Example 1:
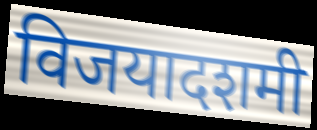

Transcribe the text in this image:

विजयादशमी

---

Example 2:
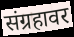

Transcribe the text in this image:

संग्रहावर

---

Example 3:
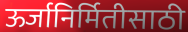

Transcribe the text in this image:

ऊर्जानिर्मितीसाठी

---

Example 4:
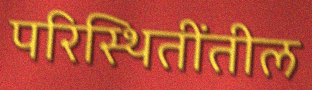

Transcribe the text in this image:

परिस्थितींतील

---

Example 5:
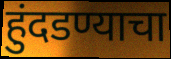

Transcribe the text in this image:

हुंदडण्याचा